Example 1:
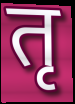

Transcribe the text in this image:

तृ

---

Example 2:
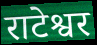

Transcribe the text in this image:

राटेश्वर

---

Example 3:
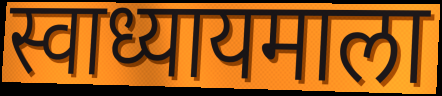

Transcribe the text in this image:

स्वाध्यायमाला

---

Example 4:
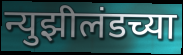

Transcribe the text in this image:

न्युझीलंडच्या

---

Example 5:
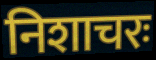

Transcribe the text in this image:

निशाचरः